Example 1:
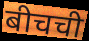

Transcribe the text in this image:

बीचची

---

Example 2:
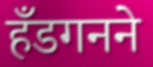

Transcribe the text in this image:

हँडगनने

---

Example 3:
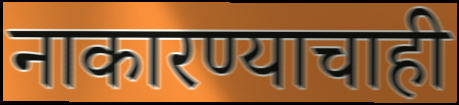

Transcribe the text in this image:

नाकारण्याचाही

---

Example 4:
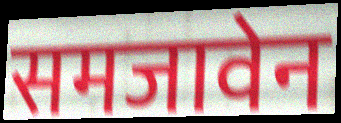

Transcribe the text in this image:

समजावेन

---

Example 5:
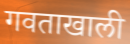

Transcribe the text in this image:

गवताखाली